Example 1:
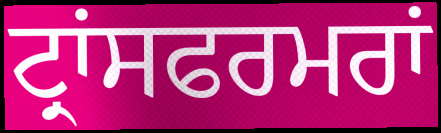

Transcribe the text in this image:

ਟ੍ਰਾਂਸਫਰਮਰਾਂ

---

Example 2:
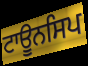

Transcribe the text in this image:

ਟਾਊਨਸਿਪ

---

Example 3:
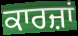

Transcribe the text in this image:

ਕਾਰਜ਼ਾਂ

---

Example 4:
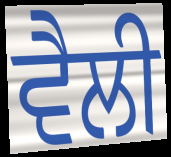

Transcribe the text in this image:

ਵੈਲੀ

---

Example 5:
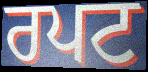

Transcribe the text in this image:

ਰਪਟ